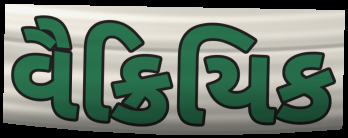
વૈક્રિયિક